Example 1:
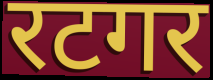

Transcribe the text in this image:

रटगर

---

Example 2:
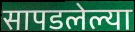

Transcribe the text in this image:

सापडलेल्या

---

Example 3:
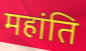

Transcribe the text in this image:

महांति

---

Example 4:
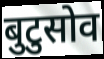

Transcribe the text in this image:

बुटुसोव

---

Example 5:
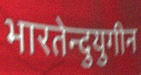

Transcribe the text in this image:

भारतेन्दुयुगीन